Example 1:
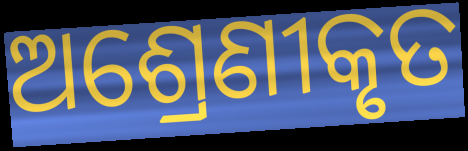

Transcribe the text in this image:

ଅଶ୍ରେଣୀକୃତ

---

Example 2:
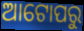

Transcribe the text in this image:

ଆଟୋପରୁ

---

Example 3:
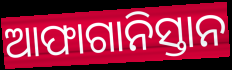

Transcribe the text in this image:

ଆଫାଗାନିସ୍ତାନ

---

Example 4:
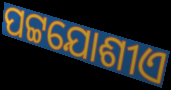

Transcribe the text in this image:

ପଟ୍ଟଯୋଶୀଏ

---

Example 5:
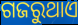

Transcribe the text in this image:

ଗଜରୁଥାଏ